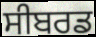
ਸੀਬਰਡ